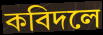
কবিদলে